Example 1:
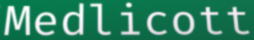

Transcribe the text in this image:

Medlicott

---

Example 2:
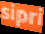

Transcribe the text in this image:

sipri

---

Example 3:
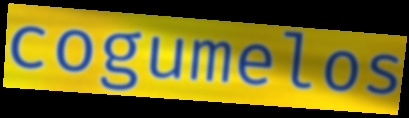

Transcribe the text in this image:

cogumelos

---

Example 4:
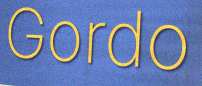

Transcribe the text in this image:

Gordo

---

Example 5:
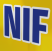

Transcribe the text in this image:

NIF